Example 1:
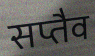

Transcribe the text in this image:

सप्तैव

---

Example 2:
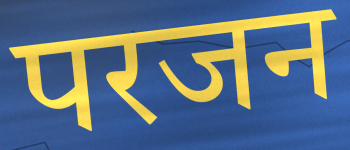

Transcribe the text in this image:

परजन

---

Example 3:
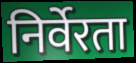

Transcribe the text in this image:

निर्वेरता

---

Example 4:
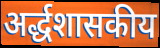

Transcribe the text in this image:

अर्द्धशासकीय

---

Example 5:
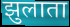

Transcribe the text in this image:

झुलाता